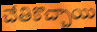
చేతికొచ్చాయి